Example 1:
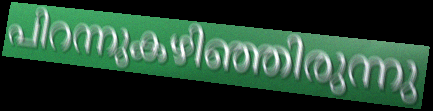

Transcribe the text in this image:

പിറന്നുകഴിഞ്ഞിരുന്നു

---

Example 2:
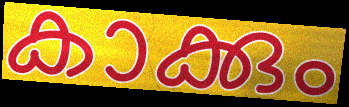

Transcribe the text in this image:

കാക്കും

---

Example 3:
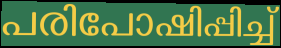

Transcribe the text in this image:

പരിപോഷിപ്പിച്ച്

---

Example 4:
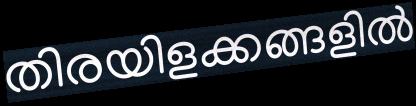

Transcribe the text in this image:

തിരയിളക്കങ്ങളിൽ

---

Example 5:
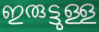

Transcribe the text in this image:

ഇരുട്ടുള്ള